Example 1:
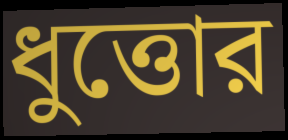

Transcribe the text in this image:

ধুত্তোর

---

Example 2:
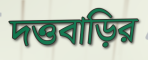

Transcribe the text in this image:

দত্তবাড়ির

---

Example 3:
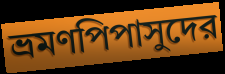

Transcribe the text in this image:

ভ্রমণপিপাসুদের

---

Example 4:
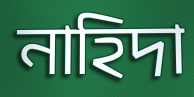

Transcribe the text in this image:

নাহিদা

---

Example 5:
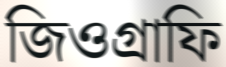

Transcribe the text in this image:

জিওগ্রাফি